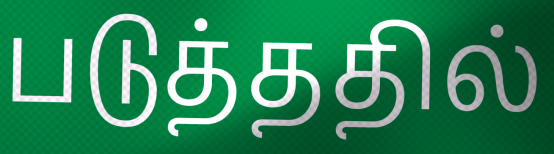
படுத்ததில்